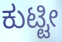
ಕುಟ್ಟೀ